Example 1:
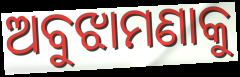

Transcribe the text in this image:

ଅବୁଝାମଣାକୁ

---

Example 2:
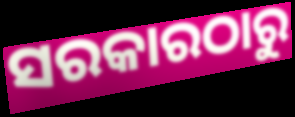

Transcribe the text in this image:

ସରକାରଠାରୁ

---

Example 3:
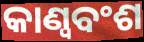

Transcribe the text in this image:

କାଣ୍ୱବଂଶ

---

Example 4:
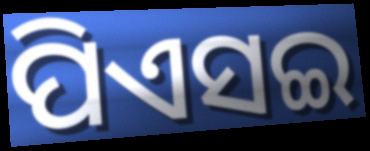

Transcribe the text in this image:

ପିଏସଇ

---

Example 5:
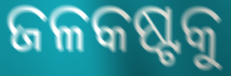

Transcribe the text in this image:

ଜଳକଷ୍ଟକୁ